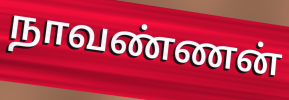
நாவண்ணன்